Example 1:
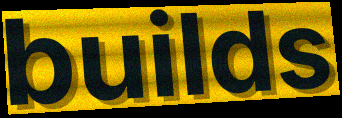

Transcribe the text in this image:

builds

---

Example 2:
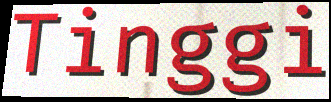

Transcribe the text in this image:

Tinggi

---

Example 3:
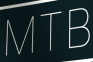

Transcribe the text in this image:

MTB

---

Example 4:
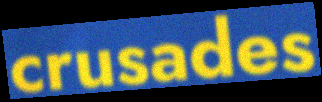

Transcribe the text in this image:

crusades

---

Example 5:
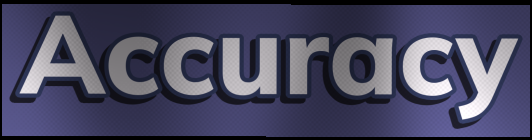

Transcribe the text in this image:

Accuracy